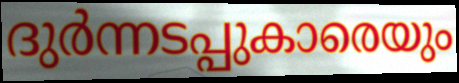
ദുർന്നടപ്പുകാരെയും